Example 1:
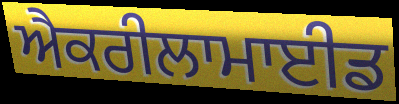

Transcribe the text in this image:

ਐਕਰੀਲਾਮਾਈਡ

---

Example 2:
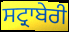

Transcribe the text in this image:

ਸਟ੍ਰਾਬੇਰੀ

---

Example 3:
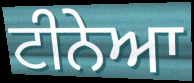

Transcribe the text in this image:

ਟੀਨੇਆ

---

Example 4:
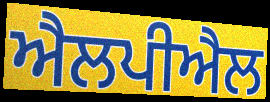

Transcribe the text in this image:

ਐਲਪੀਐਲ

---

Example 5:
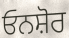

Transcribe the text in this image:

ਓਨਸ਼ੋਰ